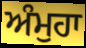
ਅੰਮੁਹਾ